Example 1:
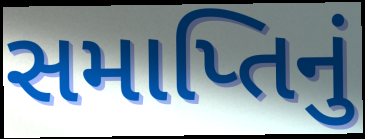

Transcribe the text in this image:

સમાપ્તિનું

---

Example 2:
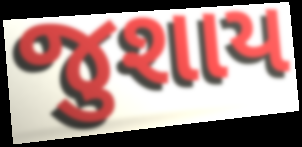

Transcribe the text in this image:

જુશાય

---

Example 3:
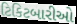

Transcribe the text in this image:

ટિકિટબારીઓ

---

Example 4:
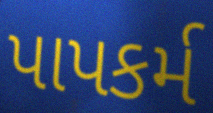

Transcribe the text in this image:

પાપકર્મ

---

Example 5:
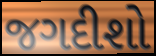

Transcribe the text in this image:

જગદીશો